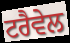
ਟਰੈਵੇਲ